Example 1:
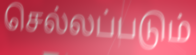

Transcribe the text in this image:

செல்லப்படும்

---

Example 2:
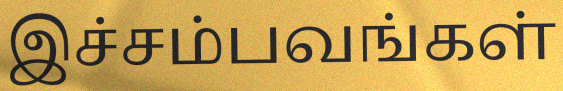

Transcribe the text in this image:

இச்சம்பவங்கள்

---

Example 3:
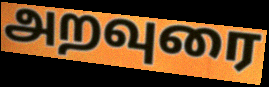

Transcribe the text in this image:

அறவுரை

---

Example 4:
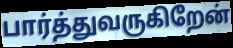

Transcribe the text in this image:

பார்த்துவருகிறேன்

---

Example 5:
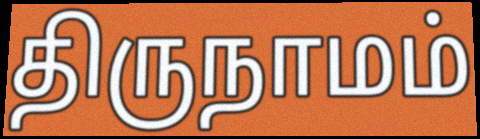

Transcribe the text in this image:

திருநாமம்